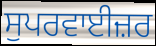
ਸੁਪਰਵਾਈਜ਼ਰ